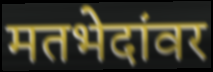
मतभेदांवर